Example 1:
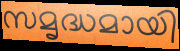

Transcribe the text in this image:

സമൃദ്ധമായി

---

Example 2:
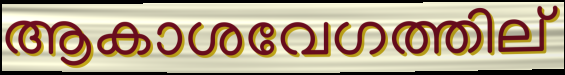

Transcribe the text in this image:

ആകാശവേഗത്തില്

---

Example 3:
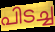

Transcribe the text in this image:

പിടച്ച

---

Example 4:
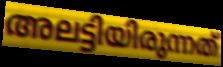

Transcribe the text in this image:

അലട്ടിയിരുന്നത്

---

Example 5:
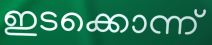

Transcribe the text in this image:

ഇടക്കൊന്ന്